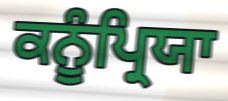
ਕਨੂੰਪ੍ਰਿਯਾ